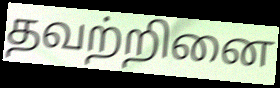
தவற்றினை